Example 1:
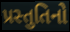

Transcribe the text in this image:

પ્રસ્તુતિનો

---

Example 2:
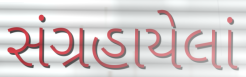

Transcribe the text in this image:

સંગ્રહાયેલાં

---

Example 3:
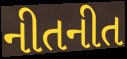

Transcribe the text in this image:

નીતનીત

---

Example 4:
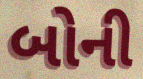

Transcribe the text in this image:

બોની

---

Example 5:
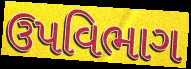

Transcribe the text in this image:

ઉપવિભાગ